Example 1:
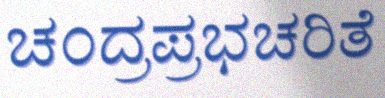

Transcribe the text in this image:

ಚಂದ್ರಪ್ರಭಚರಿತೆ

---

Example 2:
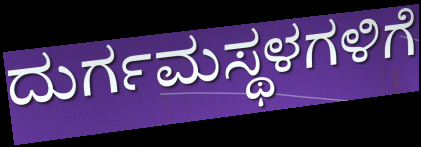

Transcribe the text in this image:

ದುರ್ಗಮಸ್ಥಳಗಳಿಗೆ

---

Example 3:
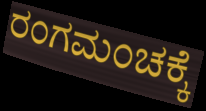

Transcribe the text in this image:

ರಂಗಮಂಚಕ್ಕೆ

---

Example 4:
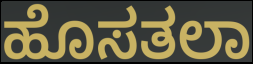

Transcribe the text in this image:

ಹೊಸತಲಾ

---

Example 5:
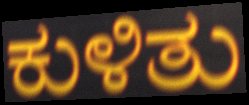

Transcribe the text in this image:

ಕುಳಿತು